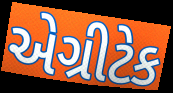
એગ્રીટેક